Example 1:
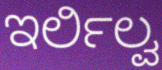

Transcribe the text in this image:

ಇರ್ಲಿಲ್ವ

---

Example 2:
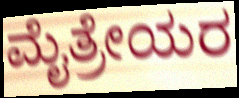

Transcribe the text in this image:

ಮೈತ್ರೇಯರ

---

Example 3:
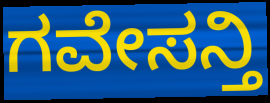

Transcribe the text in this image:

ಗವೇಸನ್ತಿ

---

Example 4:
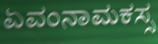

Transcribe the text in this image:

ಏವಂನಾಮಕಸ್ಸ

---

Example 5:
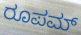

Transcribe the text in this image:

ರೂಪಮ್